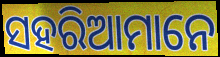
ସହରିଆମାନେ